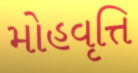
મોહવૃત્તિ